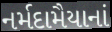
નર્મદામૈયાનાં